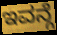
ಇವನ್ಗೆ